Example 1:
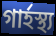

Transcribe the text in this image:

গাৰ্হস্থ্য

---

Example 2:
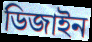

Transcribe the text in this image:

ডিজাইন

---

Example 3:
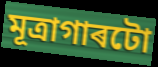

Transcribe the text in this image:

মূত্ৰাগাৰটো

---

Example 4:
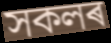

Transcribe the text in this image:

সকলৰ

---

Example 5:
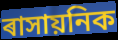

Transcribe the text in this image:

ৰাসায়নিক